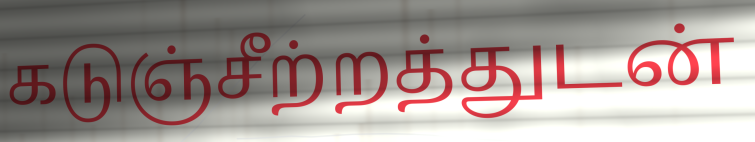
கடுஞ்சீற்றத்துடன்